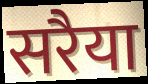
सरैया